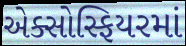
એક્સોસ્ફિયરમાં